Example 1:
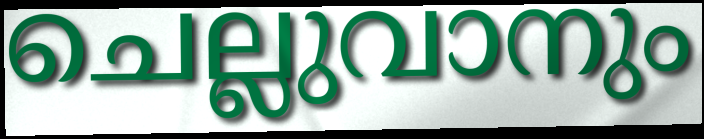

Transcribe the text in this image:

ചെല്ലുവാനും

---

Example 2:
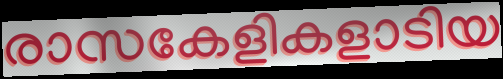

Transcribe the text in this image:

രാസകേളികളാടിയ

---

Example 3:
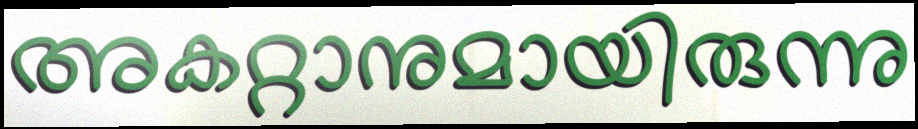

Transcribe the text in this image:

അകറ്റാനുമായിരുന്നു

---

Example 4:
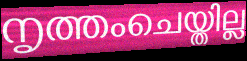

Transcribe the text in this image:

നൃത്തംചെയ്തില്ല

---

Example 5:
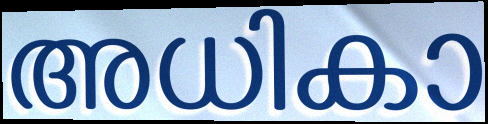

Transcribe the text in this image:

അധികാ